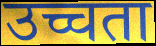
उच्चता